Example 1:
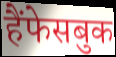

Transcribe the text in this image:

हैंफेसबुक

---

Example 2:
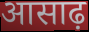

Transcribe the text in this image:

आसाढ़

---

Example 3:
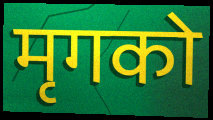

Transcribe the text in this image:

मृगको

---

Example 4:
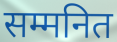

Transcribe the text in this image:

सम्मनित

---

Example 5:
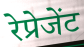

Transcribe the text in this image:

रेप्रेजेंट